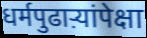
धर्मपुढाऱ्‍यांपेक्षा